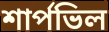
শার্পভিল